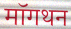
मॉगथन